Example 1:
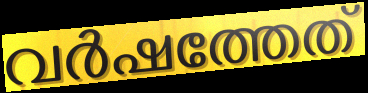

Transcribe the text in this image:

വർഷത്തേത്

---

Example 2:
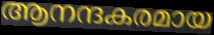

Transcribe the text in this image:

ആനന്ദകരമായ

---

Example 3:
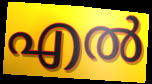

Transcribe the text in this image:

എൽ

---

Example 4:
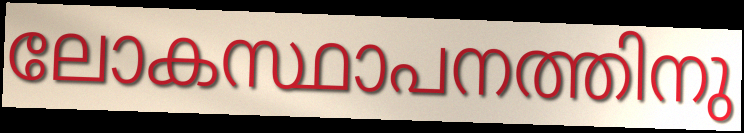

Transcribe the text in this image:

ലോകസ്ഥാപനത്തിനു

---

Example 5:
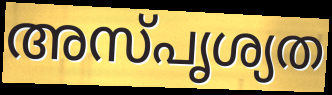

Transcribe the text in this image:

അസ്പൃശ്യത